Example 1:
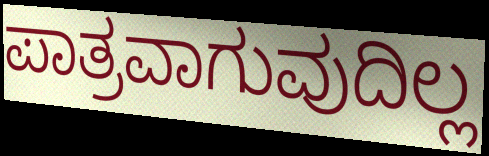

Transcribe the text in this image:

ಪಾತ್ರವಾಗುವುದಿಲ್ಲ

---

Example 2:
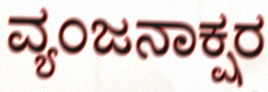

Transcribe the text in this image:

ವ್ಯಂಜನಾಕ್ಷರ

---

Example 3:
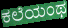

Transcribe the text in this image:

ಕಲೆಯಂಥ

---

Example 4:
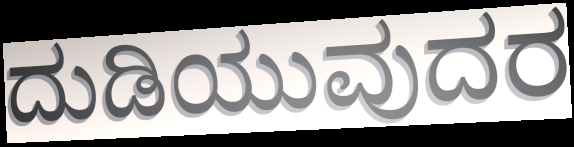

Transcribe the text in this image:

ದುಡಿಯುವುದರ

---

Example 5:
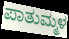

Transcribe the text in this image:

ಪಾತುಮ್ಮಳ